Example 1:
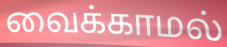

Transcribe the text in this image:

வைக்காமல்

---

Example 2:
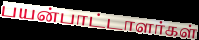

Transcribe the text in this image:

பயன்பாட்டாளர்கள்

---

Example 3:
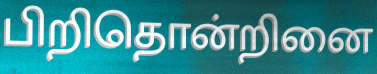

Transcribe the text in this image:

பிறிதொன்றினை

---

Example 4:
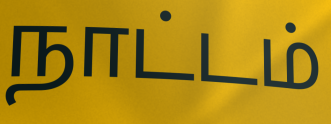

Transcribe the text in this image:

நாட்டம்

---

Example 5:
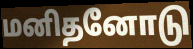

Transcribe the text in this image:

மனிதனோடு